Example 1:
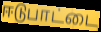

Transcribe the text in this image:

ஈடுபாட்டை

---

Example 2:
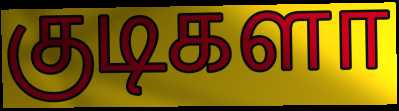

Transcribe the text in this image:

குடிகளா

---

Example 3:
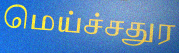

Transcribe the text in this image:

மெய்ச்சதுர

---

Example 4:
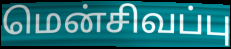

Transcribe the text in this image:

மென்சிவப்பு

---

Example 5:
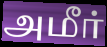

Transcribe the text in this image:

அமீர்